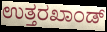
ಉತ್ತರಖಾಂಡ್